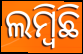
ଲମ୍ବିଛି